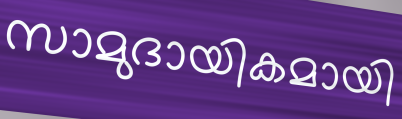
സാമുദായികമായി